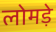
लोमड़े